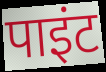
पाइंट